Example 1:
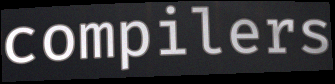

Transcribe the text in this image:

compilers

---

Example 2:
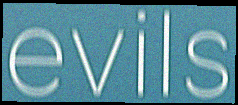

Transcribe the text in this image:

evils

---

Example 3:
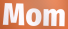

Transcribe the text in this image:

Mom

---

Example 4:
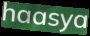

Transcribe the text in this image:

haasya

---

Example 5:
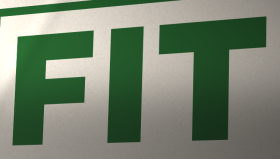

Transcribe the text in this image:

FIT